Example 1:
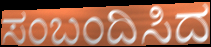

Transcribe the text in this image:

ಸಂಬಂದಿಸಿದ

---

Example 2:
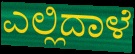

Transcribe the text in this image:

ಎಲ್ಲಿದಾಳೆ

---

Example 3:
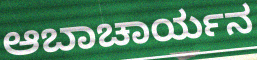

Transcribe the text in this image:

ಆಬಾಚಾರ್ಯನ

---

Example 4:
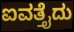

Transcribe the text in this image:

ಐವತ್ತೈದು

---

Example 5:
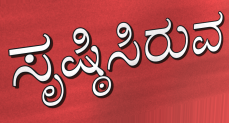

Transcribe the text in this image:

ಸೃಷ್ಠಿಸಿರುವ